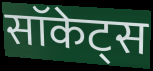
सॉकेट्स